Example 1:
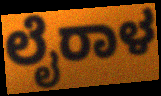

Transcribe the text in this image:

ಲೈರಾಳ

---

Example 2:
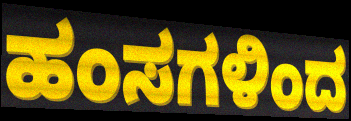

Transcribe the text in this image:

ಹಂಸಗಳಿಂದ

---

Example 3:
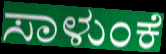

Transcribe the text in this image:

ಸಾಳುಂಕೆ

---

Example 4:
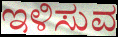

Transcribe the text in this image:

ಇಳಿಸುವ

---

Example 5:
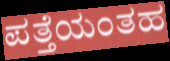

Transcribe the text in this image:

ಪತ್ತೆಯಂತಹ